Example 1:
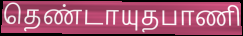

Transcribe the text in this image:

தெண்டாயுதபாணி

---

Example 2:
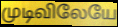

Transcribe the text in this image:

முடிவிலேயே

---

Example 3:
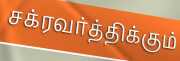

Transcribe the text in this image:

சக்ரவர்த்திக்கும்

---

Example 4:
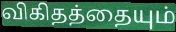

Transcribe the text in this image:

விகிதத்தையும்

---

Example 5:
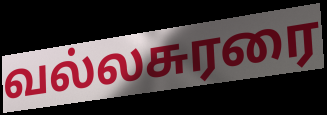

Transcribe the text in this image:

வல்லசுரரை